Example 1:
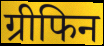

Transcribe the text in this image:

ग्रीफिन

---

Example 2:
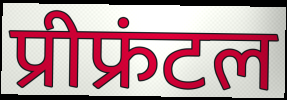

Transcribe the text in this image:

प्रीफ्रंटल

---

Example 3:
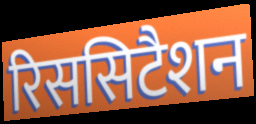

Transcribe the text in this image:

रिससिटैशन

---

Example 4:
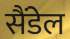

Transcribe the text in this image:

सैंडेल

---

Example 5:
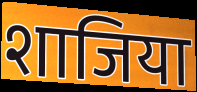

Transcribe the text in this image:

शाजिया